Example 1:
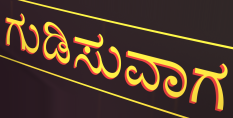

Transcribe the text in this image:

ಗುಡಿಸುವಾಗ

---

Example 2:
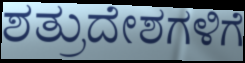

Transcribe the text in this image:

ಶತ್ರುದೇಶಗಳಿಗೆ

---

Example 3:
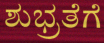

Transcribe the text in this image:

ಶುಭ್ರತೆಗೆ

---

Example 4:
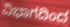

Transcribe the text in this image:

ವಿಭಾಗದಿಂದ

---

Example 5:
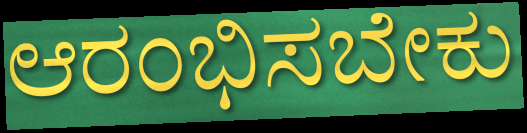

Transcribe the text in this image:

ಆರಂಭಿಸಬೇಕು